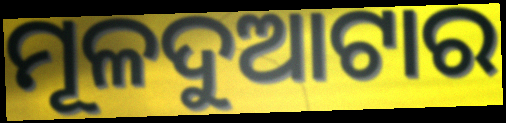
ମୂଳଦୁଆଟାର